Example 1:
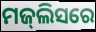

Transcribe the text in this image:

ମଜ୍‌ଲିସରେ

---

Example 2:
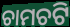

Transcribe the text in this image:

ଚାମଚଟି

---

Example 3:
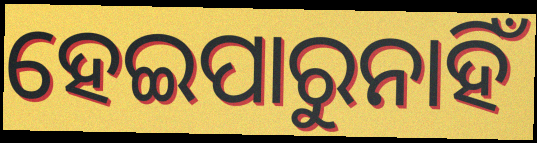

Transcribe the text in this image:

ହେଇପାରୁନାହିଁ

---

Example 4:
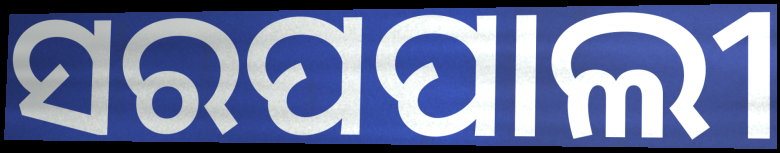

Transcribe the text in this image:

ସରପପାଲୀ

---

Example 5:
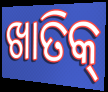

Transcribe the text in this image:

ଖାତିକ୍